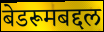
बेडरूमबद्दल